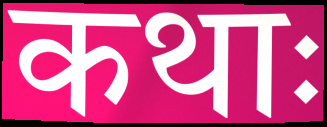
कथाः